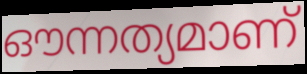
ഔന്നത്യമാണ്